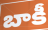
బాకీ